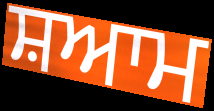
ਸ਼ਆਮ